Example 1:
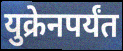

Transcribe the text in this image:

युक्रेनपर्यंत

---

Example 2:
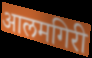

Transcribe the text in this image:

आलमगिरी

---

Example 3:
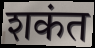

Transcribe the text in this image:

शकंत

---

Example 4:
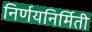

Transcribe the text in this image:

निर्णयनिर्मिती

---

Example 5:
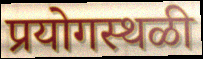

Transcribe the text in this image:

प्रयोगस्थळी